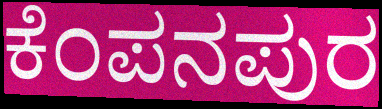
ಕೆಂಪನಪುರ